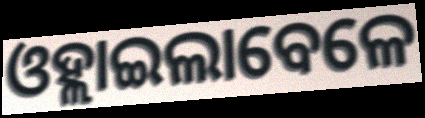
ଓହ୍ଲାଇଲାବେଳେ